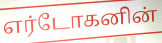
எர்டோகனின்